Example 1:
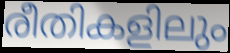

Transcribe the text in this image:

രീതികളിലും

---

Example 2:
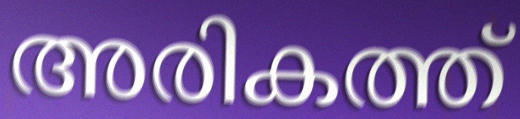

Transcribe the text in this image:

അരികത്ത്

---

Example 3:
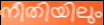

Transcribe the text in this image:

നീതിയിലും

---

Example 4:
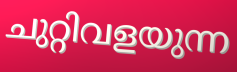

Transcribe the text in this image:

ചുറ്റിവളയുന്ന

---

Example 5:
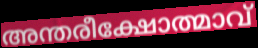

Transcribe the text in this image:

അന്തരീക്ഷോത്മാവ്